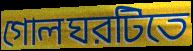
গোলঘরটিতে